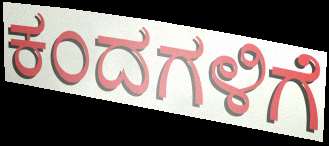
ಕಂದಗಳಿಗೆ